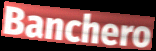
Banchero